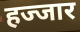
हज्जार